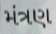
મંત્રણ